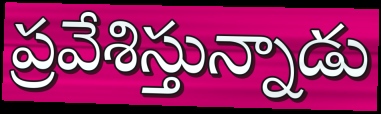
ప్రవేశిస్తున్నాడు